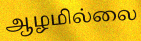
ஆழமில்லை